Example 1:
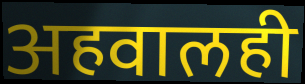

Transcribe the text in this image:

अहवालही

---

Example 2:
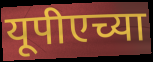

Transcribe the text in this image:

यूपीएच्या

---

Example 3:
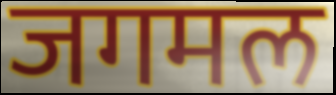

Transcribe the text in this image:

जगमल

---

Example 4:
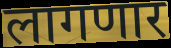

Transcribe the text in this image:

लागणार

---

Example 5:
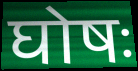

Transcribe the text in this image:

घोषः